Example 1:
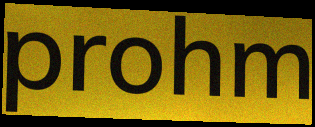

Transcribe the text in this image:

prohm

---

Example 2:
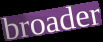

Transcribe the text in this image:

broader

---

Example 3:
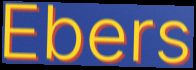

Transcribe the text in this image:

Ebers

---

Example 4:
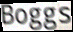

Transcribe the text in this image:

Boggs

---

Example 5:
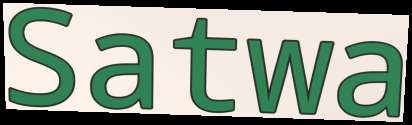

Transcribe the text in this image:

Satwa